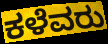
ಕಳೆವರು